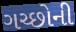
ગચ્છોની